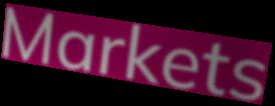
Markets